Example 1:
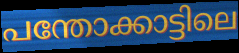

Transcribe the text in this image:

പന്തോക്കാട്ടിലെ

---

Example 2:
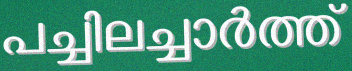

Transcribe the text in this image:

പച്ചിലച്ചാർത്ത്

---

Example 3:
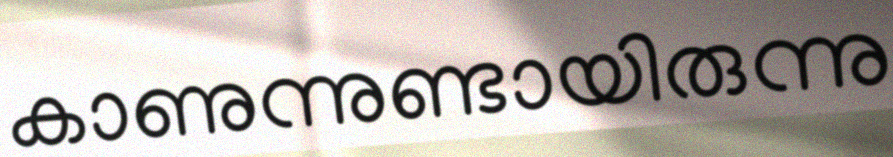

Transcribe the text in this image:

കാണുന്നുണ്ടായിരുന്നു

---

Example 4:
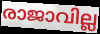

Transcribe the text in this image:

രാജാവില്ല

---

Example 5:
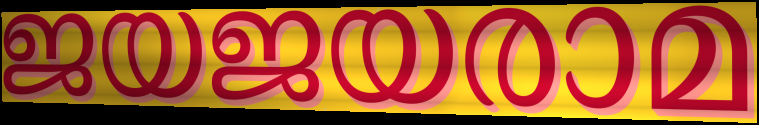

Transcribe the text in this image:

ജയജയരാമ